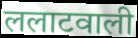
ललाटवाली